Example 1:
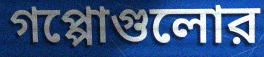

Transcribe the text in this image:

গপ্পোগুলোর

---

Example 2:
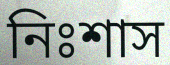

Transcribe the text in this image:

নিঃশাস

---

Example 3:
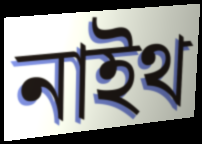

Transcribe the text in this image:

নাইথ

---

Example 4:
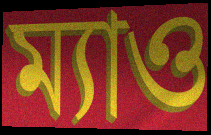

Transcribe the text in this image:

ম্যাও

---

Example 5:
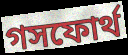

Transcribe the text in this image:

গসফোর্থ